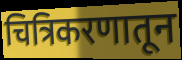
चित्रिकरणातून